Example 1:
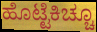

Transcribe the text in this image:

ಹೊಟ್ಟೆಕಿಚ್ಚೂ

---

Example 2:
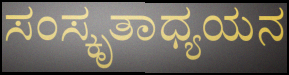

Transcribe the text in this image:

ಸಂಸ್ಕೃತಾಧ್ಯಯನ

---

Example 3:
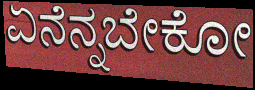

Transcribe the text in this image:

ಏನೆನ್ನಬೇಕೋ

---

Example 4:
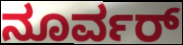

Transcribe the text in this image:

ನೂರ್ವರ್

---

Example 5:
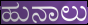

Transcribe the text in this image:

ಹುನಾಲು